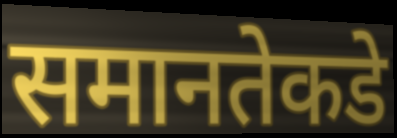
समानतेकडे